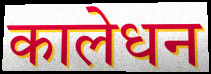
कालेधन